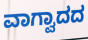
ವಾಗ್ವಾದದ